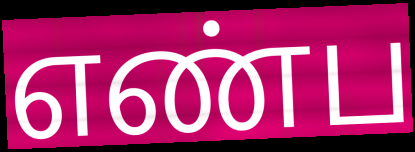
எண்ப